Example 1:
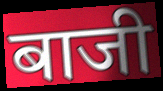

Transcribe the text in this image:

बाजी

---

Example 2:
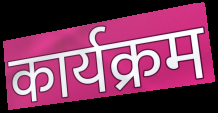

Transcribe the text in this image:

कार्यक्रम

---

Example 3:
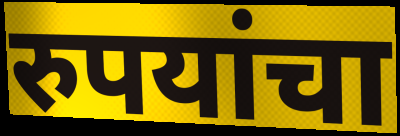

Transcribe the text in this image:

रुपयांचा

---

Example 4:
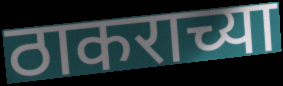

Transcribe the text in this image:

ठाकराच्या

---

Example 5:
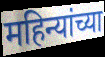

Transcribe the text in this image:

महिन्यांच्या